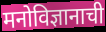
मनोविज्ञानाची